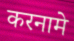
करनामे